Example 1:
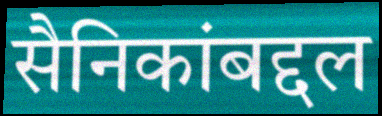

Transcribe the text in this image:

सैनिकांबद्दल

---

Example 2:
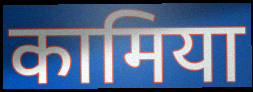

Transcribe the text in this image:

कामिया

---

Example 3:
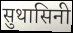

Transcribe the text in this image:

सुथासिनी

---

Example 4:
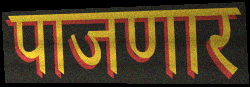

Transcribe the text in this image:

पाजणार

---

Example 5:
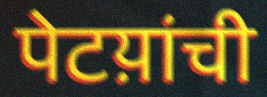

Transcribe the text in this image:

पेटय़ांची